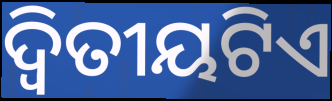
ଦ୍ୱିତୀୟଟିଏ